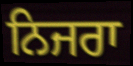
ਨਿਜਰਾ